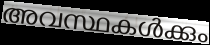
അവസ്ഥകൾക്കും